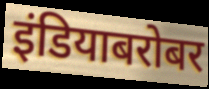
इंडियाबरोबर